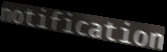
notification